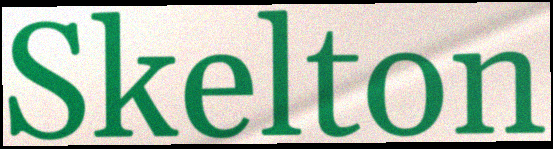
Skelton